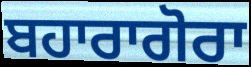
ਬਹਾਰਾਗੋਰਾ